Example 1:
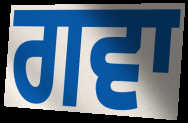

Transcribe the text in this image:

ਗਵਾ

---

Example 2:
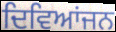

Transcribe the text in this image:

ਦਿਵਿਆਂਜਨ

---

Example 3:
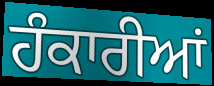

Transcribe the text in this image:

ਹੰਕਾਰੀਆਂ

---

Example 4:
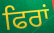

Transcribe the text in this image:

ਫਿਰਾਂ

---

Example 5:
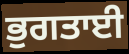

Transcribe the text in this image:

ਭੁਗਤਾਈ